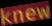
knew